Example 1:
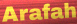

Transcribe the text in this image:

Arafah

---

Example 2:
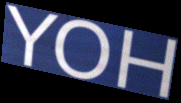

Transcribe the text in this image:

YOH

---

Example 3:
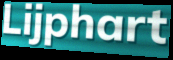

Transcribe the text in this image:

Lijphart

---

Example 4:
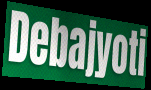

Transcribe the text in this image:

Debajyoti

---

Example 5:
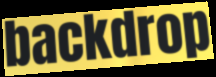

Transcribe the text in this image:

backdrop